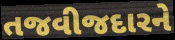
તજવીજદારને